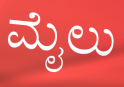
ಮೈಲು